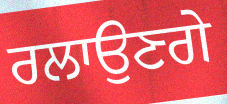
ਰਲਾਉਣਗੇ